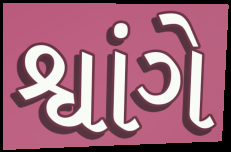
શ્વાંગે